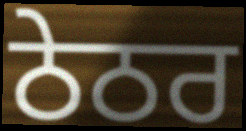
ਠੇਠਰ